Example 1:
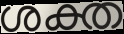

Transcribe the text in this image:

ശക്ത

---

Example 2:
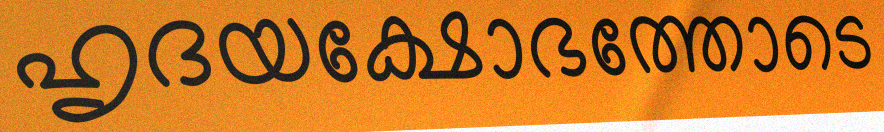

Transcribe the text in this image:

ഹൃദയക്ഷോഭത്തോടെ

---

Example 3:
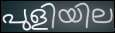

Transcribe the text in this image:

പുളിയില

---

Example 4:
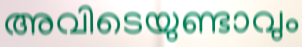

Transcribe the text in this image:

അവിടെയുണ്ടാവും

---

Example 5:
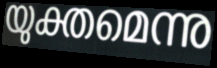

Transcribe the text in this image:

യുക്തമെന്നു